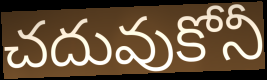
చదువుకోనీ